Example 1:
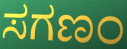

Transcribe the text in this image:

ಸಗಣಂ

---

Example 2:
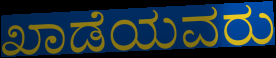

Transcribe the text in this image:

ಖಾಡೆಯವರು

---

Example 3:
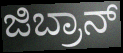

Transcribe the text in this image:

ಜಿಬ್ರಾನ್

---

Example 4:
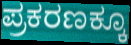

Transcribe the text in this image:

ಪ್ರಕರಣಕ್ಕೂ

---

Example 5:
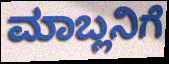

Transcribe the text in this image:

ಮಾಬ್ಲನಿಗೆ